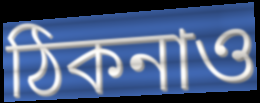
ঠিকনাও